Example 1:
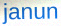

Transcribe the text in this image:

janun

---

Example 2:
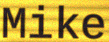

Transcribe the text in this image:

Mike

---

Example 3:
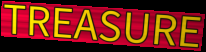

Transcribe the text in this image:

TREASURE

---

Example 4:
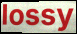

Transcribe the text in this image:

lossy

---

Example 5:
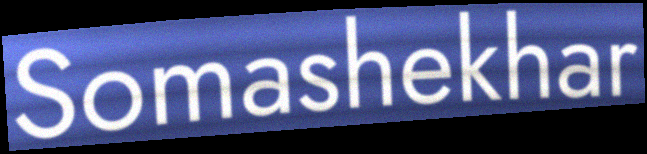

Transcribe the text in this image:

Somashekhar